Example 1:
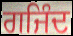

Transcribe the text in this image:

ਗਜਿੰਦ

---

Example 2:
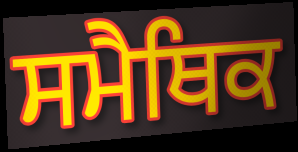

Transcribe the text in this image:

ਸਮੈਥਿਕ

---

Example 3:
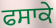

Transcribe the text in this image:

ਫਸਾਕੇ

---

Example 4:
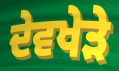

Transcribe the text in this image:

ਦੇਵਖੇੜੇ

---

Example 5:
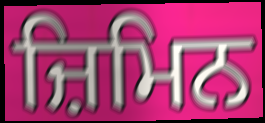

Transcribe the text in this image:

ਜ਼ਿਮਿਨ